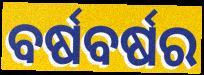
ବର୍ଷବର୍ଷର